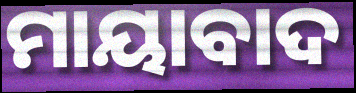
ମାୟାବାଦ